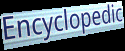
Encyclopedic